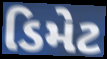
ડિમેટ